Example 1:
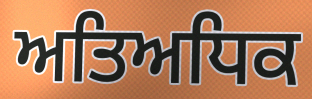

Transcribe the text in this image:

ਅਤਿਅਧਿਕ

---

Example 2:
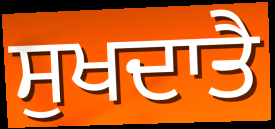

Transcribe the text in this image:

ਸੁਖਦਾਤੈ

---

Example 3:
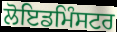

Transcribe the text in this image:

ਲੋਇਡਮਿੰਸਟਰ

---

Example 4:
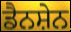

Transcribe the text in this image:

ਡੈਨਸ਼ੇਨ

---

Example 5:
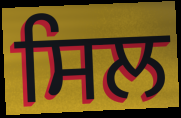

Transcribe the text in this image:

ਸਿਲ